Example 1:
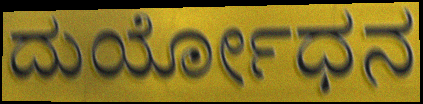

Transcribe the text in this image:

ದುರ್ಯೋಧನ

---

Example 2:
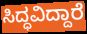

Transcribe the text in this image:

ಸಿದ್ಧವಿದ್ದಾರೆ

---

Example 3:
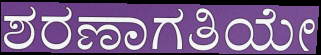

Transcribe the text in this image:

ಶರಣಾಗತಿಯೇ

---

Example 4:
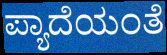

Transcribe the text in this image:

ಪ್ಯಾದೆಯಂತೆ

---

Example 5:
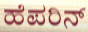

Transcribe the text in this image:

ಹೆಪರಿನ್